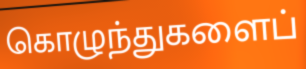
கொழுந்துகளைப்